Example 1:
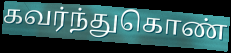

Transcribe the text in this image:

கவர்ந்துகொண்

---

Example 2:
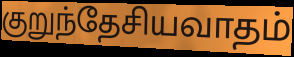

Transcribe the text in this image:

குறுந்தேசியவாதம்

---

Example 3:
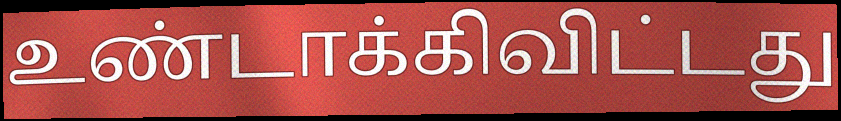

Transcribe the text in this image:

உண்டாக்கிவிட்டது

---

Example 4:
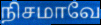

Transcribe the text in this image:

நிசமாவே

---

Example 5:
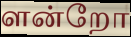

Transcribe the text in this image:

ளன்றோ